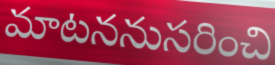
మాటననుసరించి